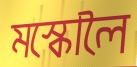
মস্কোলৈ